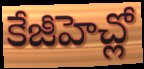
కేజీహెచ్లో